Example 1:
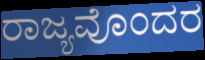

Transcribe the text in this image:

ರಾಜ್ಯವೊಂದರ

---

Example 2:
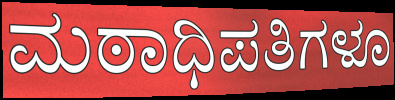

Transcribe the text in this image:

ಮಠಾಧಿಪತಿಗಳೂ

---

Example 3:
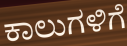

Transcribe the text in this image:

ಕಾಲುಗಳಿಗೆ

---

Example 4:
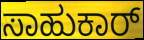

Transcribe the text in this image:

ಸಾಹುಕಾರ್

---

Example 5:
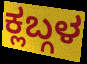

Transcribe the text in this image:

ಕ್ಲಬ್ಗಳ